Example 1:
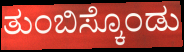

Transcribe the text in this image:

ತುಂಬಿಸ್ಕೊಂಡು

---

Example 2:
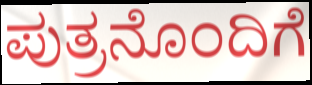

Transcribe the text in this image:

ಪುತ್ರನೊಂದಿಗೆ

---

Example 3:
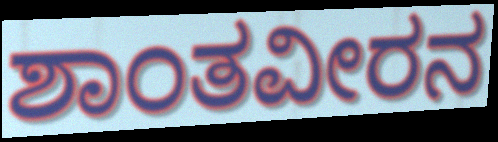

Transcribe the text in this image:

ಶಾಂತವೀರನ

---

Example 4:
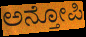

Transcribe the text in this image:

ಅನ್ತೋಪಿ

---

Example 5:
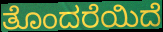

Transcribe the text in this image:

ತೊಂದರೆಯಿದೆ